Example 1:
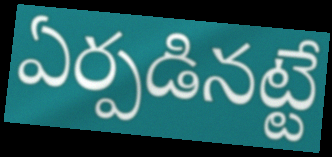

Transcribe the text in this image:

ఏర్పడినట్టే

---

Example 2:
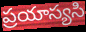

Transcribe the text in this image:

ప్రయాస్యసి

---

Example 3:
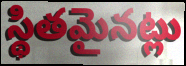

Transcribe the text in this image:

స్థితమైనట్లు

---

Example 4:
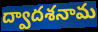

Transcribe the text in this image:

ద్వాదశనామ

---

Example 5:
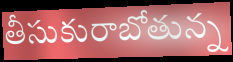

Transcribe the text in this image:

తీసుకురాబోతున్న